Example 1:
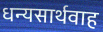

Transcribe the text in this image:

धन्यसार्थवाह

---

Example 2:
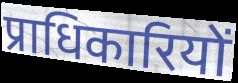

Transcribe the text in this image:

प्राधिकारियों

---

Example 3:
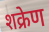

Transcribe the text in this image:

शक्रेण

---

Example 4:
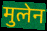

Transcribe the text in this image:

मुलेन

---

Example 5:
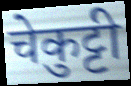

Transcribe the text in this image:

चेकुट्टी